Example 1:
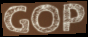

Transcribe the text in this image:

GOP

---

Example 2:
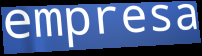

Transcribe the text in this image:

empresa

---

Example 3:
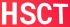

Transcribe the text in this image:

HSCT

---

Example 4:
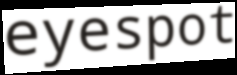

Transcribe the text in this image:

eyespot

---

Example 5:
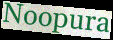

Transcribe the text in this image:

Noopura